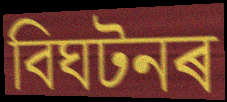
বিঘটনৰ